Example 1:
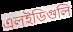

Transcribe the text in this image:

এলইডিগুলি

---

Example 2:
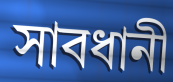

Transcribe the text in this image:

সাবধানী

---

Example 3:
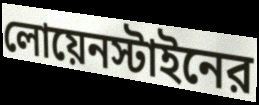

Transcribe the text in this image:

লোয়েনস্টাইনের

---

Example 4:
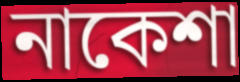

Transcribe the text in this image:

নাকেশা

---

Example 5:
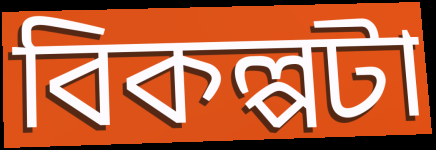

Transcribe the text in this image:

বিকল্পটা